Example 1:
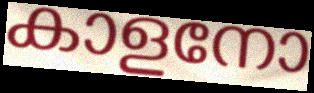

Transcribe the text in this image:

കാളനോ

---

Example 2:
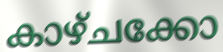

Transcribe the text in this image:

കാഴ്ചക്കോ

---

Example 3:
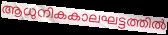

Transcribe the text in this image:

ആധുനികകാലഘട്ടത്തിൽ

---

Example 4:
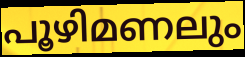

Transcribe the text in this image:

പൂഴിമണലും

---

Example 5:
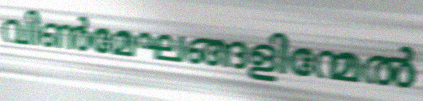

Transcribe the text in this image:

വിൺമേഘങ്ങളിന്മേൽ